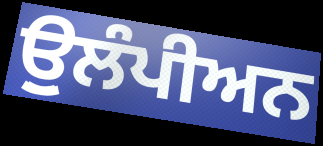
ਉੁਲੰਪੀਅਨ